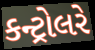
કન્ટ્રોલરે